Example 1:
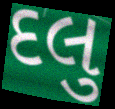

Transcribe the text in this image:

દલુ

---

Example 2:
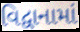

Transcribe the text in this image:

વિદ્વાનામાં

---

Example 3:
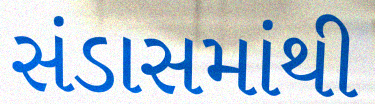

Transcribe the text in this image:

સંડાસમાંથી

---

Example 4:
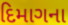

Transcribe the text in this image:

દિમાગના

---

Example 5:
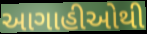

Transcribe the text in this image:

આગાહીઓથી